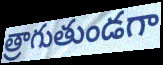
త్రాగుతుండగా